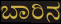
ಬಾರಿನ